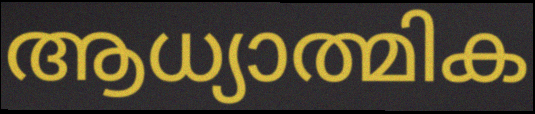
ആധ്യാത്മിക